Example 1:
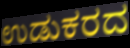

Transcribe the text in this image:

ಉಡುಕರದ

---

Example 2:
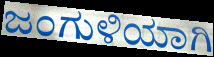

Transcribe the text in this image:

ಜಂಗುಳಿಯಾಗಿ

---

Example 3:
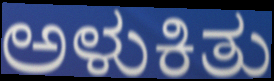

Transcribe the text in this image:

ಅಳುಕಿತು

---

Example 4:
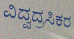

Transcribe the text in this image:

ವಿದ್ವದ್ರಸಿಕರ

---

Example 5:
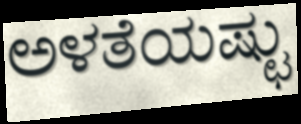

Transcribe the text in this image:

ಅಳತೆಯಷ್ಟು